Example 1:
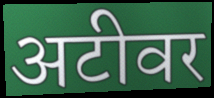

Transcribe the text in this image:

अटीवर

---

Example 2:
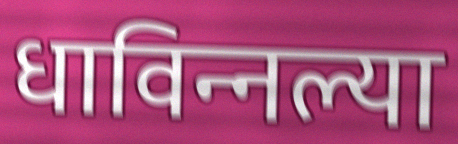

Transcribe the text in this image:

धाविन्नल्या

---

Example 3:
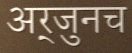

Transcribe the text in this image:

अर्जुनच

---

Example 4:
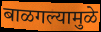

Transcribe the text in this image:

बाळगल्यामुळे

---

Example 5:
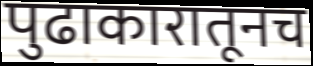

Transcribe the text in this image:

पुढाकारातूनच